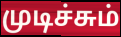
முடிச்சும்